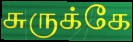
சுருக்கே